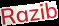
Razib